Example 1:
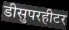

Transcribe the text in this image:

डीसुपरहीटर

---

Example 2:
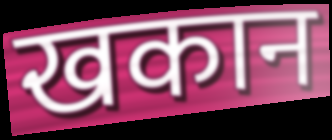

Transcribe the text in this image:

खकान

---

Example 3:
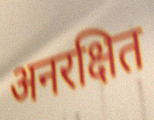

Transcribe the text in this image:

अनरक्षित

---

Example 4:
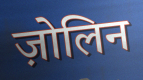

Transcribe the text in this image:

ज़ोलिन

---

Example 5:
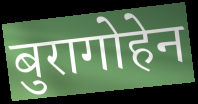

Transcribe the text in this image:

बुरागोहेन